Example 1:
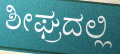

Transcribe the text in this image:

ಶೀಘ್ರದಲ್ಲಿ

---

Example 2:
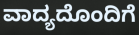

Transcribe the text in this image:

ವಾದ್ಯದೊಂದಿಗೆ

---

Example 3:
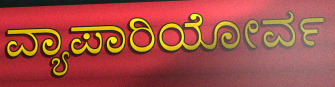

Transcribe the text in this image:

ವ್ಯಾಪಾರಿಯೋರ್ವ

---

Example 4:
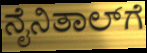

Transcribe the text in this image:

ನೈನಿತಾಲ್‌ಗೆ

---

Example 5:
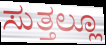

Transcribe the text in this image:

ಸುತ್ತಲ್ಲೂ